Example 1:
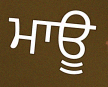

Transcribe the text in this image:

ਮਾਊ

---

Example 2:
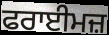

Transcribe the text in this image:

ਫਰਾਈਮਜ਼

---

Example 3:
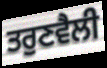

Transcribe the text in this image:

ਤਰੁਣਵੈਲੀ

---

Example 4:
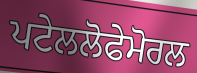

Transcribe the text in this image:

ਪਟੇਲਲੋਫੇਮੋਰਲ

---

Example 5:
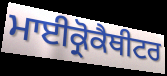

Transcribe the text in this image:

ਮਾਈਕ੍ਰੋਕੈਥੀਟਰ